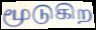
மூடுகிற